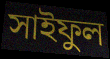
সাইফুল